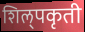
शिल्पकृती